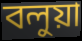
বলুয়া